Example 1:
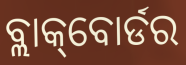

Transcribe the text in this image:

ବ୍ଲାକ୍‌ବୋର୍ଡର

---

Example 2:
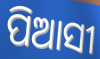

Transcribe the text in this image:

ପିଆସୀ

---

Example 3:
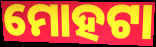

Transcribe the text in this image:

ମୋହଟା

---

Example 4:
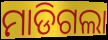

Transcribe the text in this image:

ମାଡିଗଲା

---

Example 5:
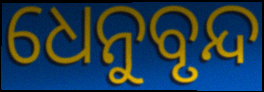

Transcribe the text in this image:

ଧେନୁବୃନ୍ଦ